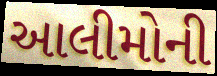
આલીમોની